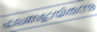
ഫലങ്ങളായിരുന്നു